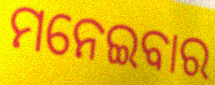
ମନେଇବାର